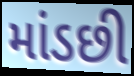
માંડછી